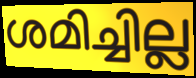
ശമിച്ചില്ല